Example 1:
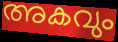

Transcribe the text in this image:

അകവും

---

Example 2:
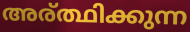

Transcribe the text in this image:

അര്ത്ഥിക്കുന്ന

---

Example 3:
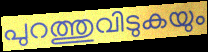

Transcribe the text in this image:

പുറത്തുവിടുകയും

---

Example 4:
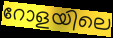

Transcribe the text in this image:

റോളയിലെ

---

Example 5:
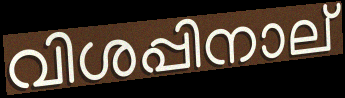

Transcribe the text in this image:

വിശപ്പിനാല്